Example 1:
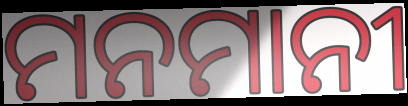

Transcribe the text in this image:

ମନମାନୀ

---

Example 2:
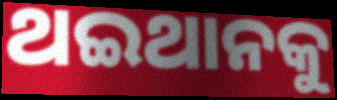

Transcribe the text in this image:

ଥଇଥାନକୁ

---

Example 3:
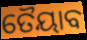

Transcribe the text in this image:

ତୈୟାବ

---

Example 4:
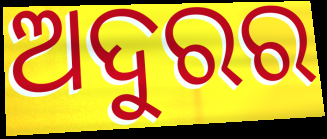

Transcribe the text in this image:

ଅଦୁରର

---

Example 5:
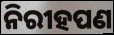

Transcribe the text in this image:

ନିରୀହପଣ